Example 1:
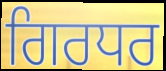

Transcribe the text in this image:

ਗਿਰਧਰ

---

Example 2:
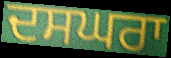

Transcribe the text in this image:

ਦਸਘਰਾ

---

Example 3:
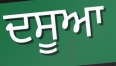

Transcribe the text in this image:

ਦਸੂਆ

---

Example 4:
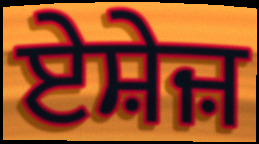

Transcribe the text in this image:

ਏਸ਼ੇਜ਼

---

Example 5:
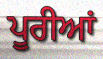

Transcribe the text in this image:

ਪੂਰੀਆਂ